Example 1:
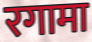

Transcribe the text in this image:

रगामा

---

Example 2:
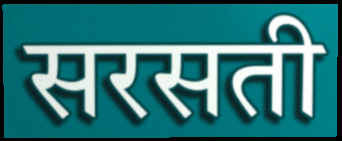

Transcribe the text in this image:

सरसती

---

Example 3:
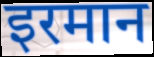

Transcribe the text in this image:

इरमान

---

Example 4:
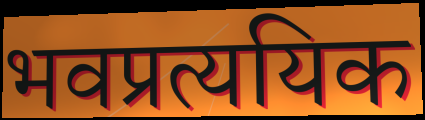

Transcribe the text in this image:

भवप्रत्ययिक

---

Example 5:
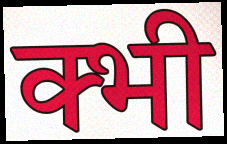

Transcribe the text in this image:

क्भी